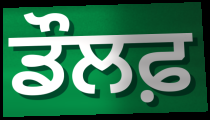
ਡੌਲਫ਼